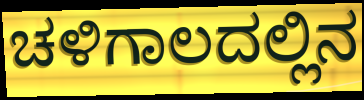
ಚಳಿಗಾಲದಲ್ಲಿನ